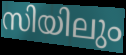
സിയിലും